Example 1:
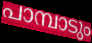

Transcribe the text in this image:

പാമ്പാടും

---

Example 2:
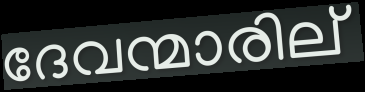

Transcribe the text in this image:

ദേവന്മാരില്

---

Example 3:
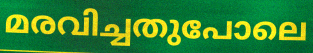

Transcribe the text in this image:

മരവിച്ചതുപോലെ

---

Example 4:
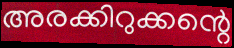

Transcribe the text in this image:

അരക്കിറുക്കന്റെ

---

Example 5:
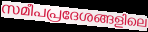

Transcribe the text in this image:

സമീപപ്രദേശങ്ങളിലെ